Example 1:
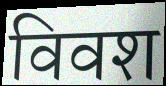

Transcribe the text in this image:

विवश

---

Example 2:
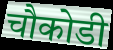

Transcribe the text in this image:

चौकोडी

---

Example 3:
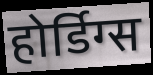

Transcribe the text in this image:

होर्डिग्स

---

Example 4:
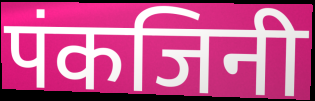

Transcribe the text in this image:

पंकजिनी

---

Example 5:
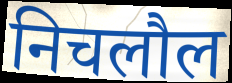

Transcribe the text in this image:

निचलौल